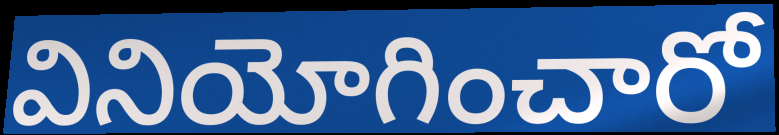
వినియోగించారో